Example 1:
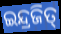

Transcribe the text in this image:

ଇନ୍ଦ୍ରଜିତ୍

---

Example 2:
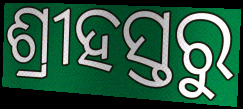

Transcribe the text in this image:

ଶ୍ରୀହସ୍ତରୁ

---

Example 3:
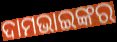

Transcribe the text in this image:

ଦାମଭାଇଙ୍କର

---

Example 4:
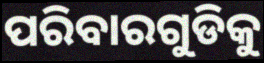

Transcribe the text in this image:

ପରିବାରଗୁଡିକୁ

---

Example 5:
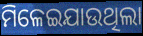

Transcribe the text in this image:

ମିଳେଇଯାଉଥିଲା